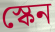
স্কেন